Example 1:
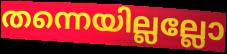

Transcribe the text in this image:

തന്നെയില്ലല്ലോ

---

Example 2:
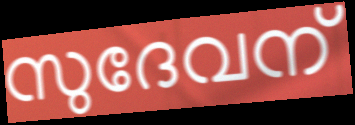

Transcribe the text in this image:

സുദേവന്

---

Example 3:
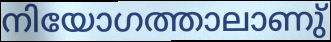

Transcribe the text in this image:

നിയോഗത്താലാണു്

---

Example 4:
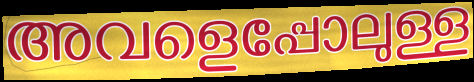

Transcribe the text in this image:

അവളെപ്പോലുള്ള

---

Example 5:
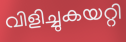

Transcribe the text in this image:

വിളിച്ചുകയറ്റി